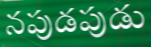
నపుడపుడు